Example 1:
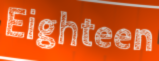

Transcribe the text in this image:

Eighteen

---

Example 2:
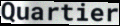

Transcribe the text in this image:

Quartier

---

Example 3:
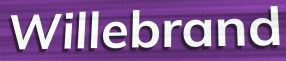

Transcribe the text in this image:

Willebrand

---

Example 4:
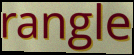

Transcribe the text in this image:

rangle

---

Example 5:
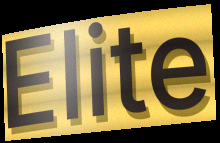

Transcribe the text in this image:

Elite